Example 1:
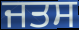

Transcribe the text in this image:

ਜਤਸ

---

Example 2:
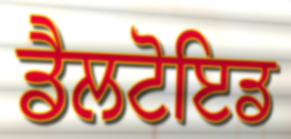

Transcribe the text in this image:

ਡੈਲਟੋਇਡ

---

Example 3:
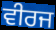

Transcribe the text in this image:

ਵੀਰਜ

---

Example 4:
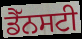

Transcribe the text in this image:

ਡੈੱਨਸਟੀ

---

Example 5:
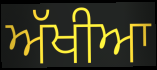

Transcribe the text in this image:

ਅੱਖੀਆ